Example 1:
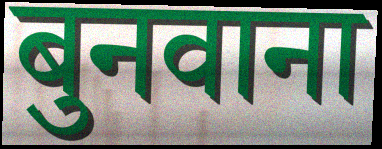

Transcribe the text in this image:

बुनवाना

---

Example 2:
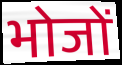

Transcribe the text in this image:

भोजों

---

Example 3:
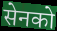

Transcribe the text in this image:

सेनको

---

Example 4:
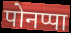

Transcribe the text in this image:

पोनप्पा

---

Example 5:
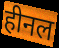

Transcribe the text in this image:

हीनल